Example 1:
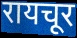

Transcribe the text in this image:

रायचूर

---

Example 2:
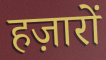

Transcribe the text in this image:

हज़ारों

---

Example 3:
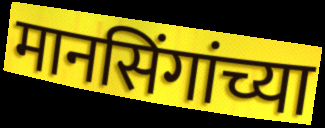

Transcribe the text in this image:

मानसिंगांच्या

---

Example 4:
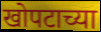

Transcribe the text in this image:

खोपटाच्या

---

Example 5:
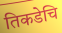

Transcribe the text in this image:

तिकडेचि